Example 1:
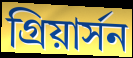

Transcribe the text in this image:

গ্রিয়ার্সন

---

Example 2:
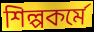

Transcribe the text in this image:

শিল্পকর্মে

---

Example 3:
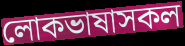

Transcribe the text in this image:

লোকভাষাসকল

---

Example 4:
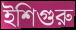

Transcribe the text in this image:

ইশিগুরু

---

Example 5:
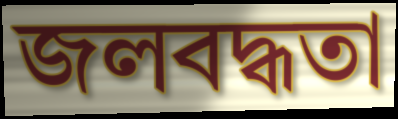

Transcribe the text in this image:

জলবদ্ধতা